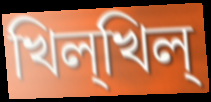
খিল্খিল্